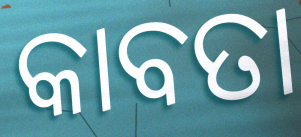
କାବତା